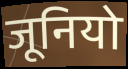
जूनियो